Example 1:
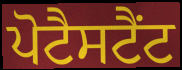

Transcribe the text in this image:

ਪੋਟੈਸਟੈਂਟ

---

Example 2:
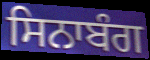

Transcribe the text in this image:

ਸਿਨਾਬੰਗ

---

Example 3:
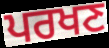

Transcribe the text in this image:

ਪਰਖਣ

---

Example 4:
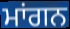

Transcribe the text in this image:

ਮਾਂਗਨ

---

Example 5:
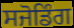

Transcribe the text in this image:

ਸਜੋਡਿੰਗ